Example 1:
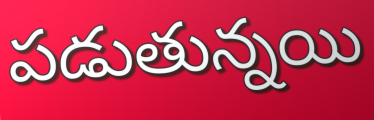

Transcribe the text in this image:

పడుతున్నయి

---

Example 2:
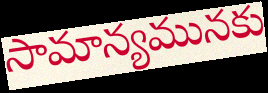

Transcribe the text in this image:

సామాన్యమునకు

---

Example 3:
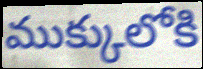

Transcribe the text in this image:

ముక్కులోకి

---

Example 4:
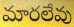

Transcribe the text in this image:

మారలేవు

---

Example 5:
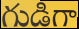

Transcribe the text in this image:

గుడిగా